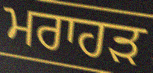
ਮਰਾਹੜ